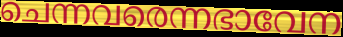
ചെന്നവരെന്നഭാവേന